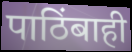
पाठिंबाही